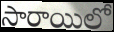
సారాయిలో